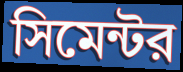
সিমেন্টর